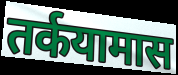
तर्कयामास